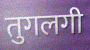
तुगलगी